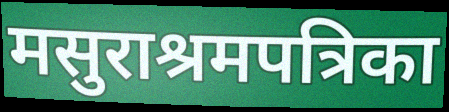
मसुराश्रमपत्रिका